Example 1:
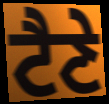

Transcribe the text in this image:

ਟੈਣੇ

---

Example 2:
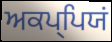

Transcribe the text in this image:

ਅਕਪ੍ਪਿਯਂ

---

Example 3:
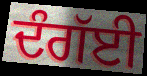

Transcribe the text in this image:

ਦੰਗੱਈ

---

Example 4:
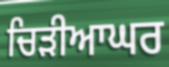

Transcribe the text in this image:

ਚਿੜੀਆਘਰ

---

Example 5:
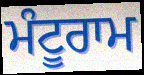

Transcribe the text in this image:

ਮੰਟੂਰਾਮ